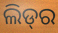
ଲିଡ୍‌ର